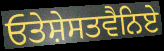
ਓਤੇਸ਼ੇਸਤਵੈਨਿਏ